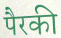
पैरकी